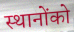
स्थानोंको